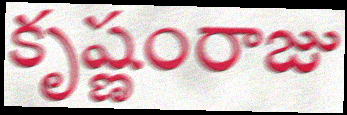
కృష్ణంరాజు